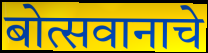
बोत्सवानाचे